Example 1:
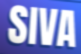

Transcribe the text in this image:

SIVA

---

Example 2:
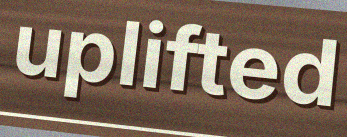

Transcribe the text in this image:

uplifted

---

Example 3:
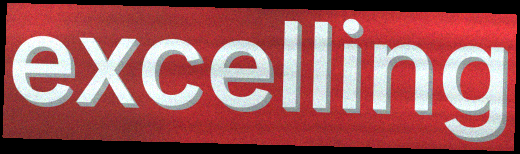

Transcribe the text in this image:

excelling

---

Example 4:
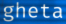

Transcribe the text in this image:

gheta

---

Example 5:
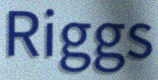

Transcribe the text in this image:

Riggs